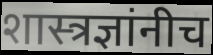
शास्त्रज्ञांनीच